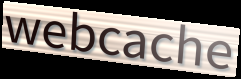
webcache